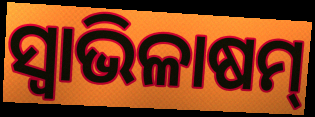
ସ୍ବାଭିଳାଷମ୍